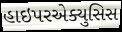
હાઇપરએક્યુસિસ